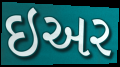
ઇઅર